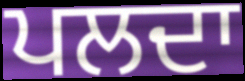
ਪਲਦਾ